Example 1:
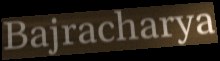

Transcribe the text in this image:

Bajracharya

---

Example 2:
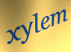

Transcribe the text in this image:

xylem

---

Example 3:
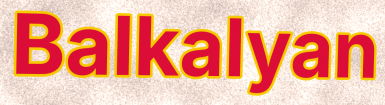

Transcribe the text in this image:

Balkalyan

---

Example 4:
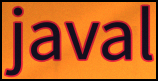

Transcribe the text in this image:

javal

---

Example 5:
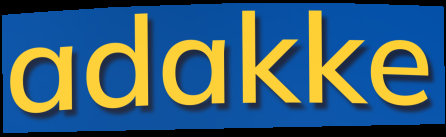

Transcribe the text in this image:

adakke